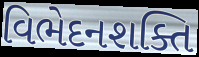
વિભેદનશક્તિ